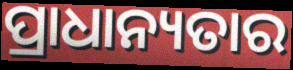
ପ୍ରାଧାନ୍ୟତାର